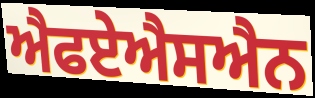
ਐਫਏਐਸਐਨ